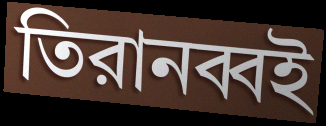
তিরানব্বই